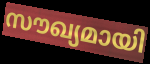
സൗഖ്യമായി